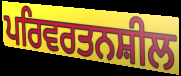
ਪਰਿਵਰਤਨਸ਼ੀਲ